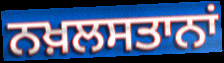
ਨਖ਼ਲਸਤਾਨਾਂ